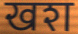
खश